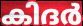
കിദർ